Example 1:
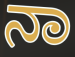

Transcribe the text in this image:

ನಾ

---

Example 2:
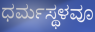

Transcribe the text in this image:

ಧರ್ಮಸ್ಥಳವೂ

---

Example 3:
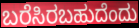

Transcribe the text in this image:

ಬರೆಸಿರಬಹುದೆಂದು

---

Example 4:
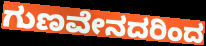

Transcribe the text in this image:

ಗುಣವೇನದರಿಂದ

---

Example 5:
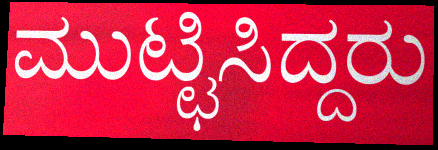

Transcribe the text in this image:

ಮುಟ್ಟಿಸಿದ್ದರು